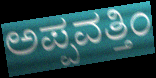
ಅಪ್ಪವತ್ತಿಂ